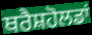
ਥਰੈਸ਼ਹੋਲਡਾਂ